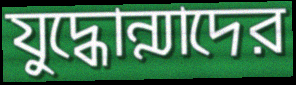
যুদ্ধোন্মাদের